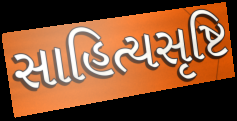
સાહિત્યસૃષ્ટિ